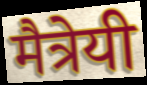
मैत्रेयी